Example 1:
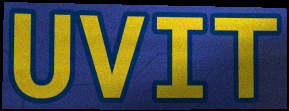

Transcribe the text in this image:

UVIT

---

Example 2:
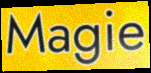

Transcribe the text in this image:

Magie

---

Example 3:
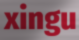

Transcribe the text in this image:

xingu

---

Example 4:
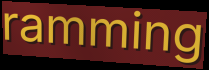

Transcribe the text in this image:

ramming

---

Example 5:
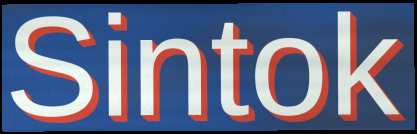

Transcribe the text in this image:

Sintok